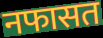
नफासत